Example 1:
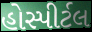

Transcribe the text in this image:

હોસ્પીર્ટલ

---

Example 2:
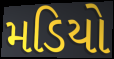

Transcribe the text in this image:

મડિયો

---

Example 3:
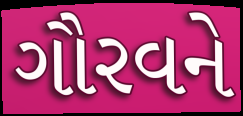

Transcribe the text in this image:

ગૌરવને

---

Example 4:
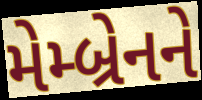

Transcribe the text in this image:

મેમ્બ્રેનને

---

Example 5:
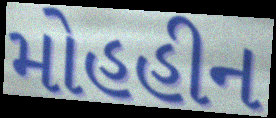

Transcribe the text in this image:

મોહહીન